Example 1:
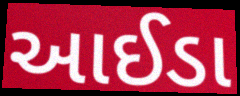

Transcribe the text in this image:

આઈડા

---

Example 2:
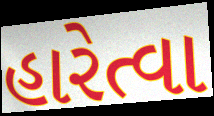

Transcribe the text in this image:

હારેત્વા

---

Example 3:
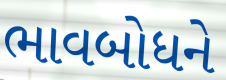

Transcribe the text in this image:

ભાવબોધને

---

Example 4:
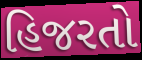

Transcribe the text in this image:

હિજરતો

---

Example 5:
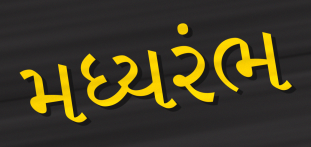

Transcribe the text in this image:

મધ્યરંભ